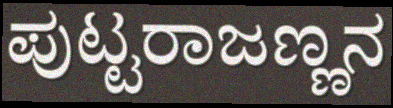
ಪುಟ್ಟರಾಜಣ್ಣನ